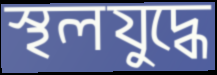
স্থলযুদ্ধে